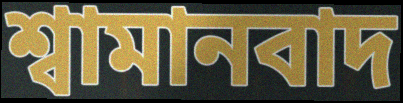
শ্বামানবাদ